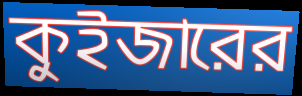
কুইজারের